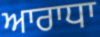
ਆਰਾਧਾ